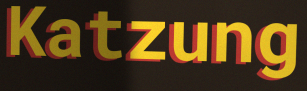
Katzung